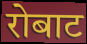
रोबाट